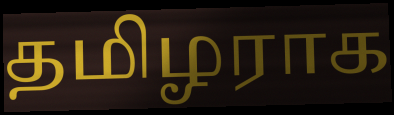
தமிழராக